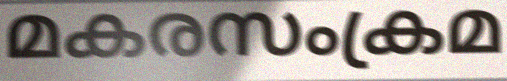
മകരസംക്രമ